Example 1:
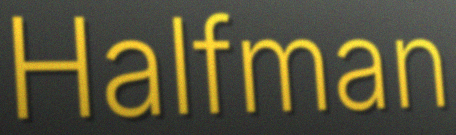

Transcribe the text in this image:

Halfman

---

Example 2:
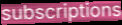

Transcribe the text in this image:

subscriptions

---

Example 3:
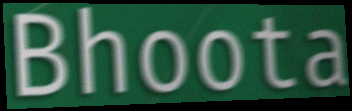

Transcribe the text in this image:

Bhoota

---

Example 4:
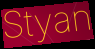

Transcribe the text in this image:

Styan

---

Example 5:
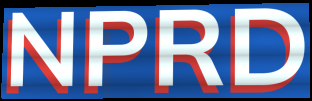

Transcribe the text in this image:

NPRD